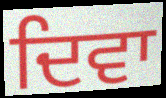
ਦਿਵਾ